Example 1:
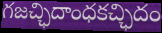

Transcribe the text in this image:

గజచ్ఛిదాంధకచ్ఛిదం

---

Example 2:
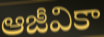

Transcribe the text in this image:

ఆజీవికా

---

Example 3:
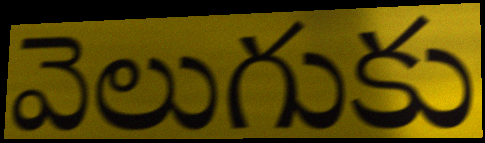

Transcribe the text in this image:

వెలుగుకు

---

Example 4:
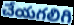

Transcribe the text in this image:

చేయగలిగి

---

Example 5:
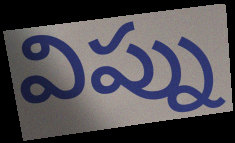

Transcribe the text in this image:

విప్ను